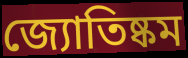
জ্যোতিষ্কম